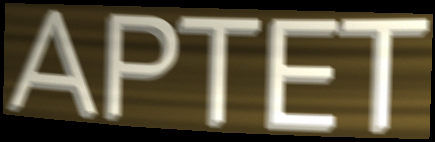
APTET